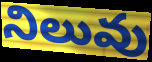
నిలువు